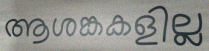
ആശങ്കകളില്ല